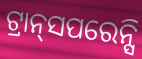
ଟ୍ରାନ୍‌ସପରେନ୍ସି